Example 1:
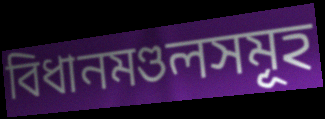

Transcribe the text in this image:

বিধানমণ্ডলসমূহ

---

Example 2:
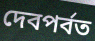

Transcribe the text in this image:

দেবপর্বত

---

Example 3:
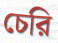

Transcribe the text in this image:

চেরি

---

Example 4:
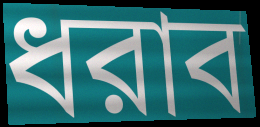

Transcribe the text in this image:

ধরাব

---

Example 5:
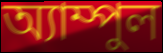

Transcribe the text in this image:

অ্যাম্পুল